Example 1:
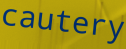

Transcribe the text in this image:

cautery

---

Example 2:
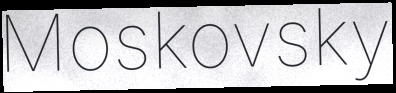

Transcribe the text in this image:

Moskovsky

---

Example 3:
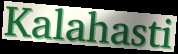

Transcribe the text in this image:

Kalahasti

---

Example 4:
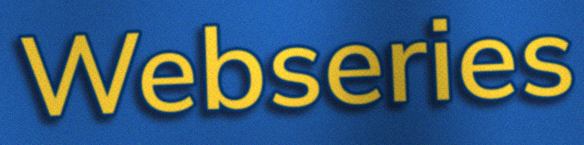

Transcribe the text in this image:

Webseries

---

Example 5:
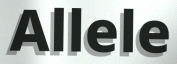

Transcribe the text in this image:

Allele